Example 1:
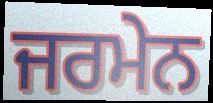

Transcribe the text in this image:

ਜਰਮੇਨ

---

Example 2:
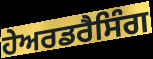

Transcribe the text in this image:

ਹੇਅਰਡਰੈਸਿੰਗ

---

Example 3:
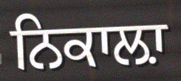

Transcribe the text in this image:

ਨਿਕਾਲ਼ਾ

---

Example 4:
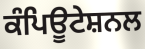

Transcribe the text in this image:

ਕੰਪਿਊਟੇਸ਼ਨਲ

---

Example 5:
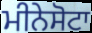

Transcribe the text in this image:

ਮੀਨੇਸੋਟਾ